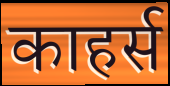
काहर्स